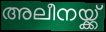
അലീനയ്ക്ക്